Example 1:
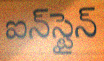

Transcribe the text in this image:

ఐన్‌స్టైన్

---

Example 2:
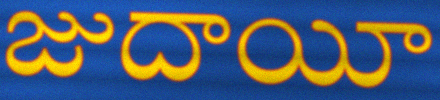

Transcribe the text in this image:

జుదాయీ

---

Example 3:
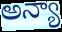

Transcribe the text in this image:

అన్యా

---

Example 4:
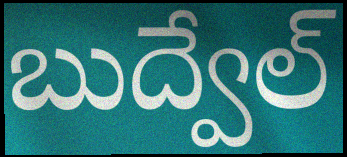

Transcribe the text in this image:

బుద్వేల్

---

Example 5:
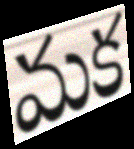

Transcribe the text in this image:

మక